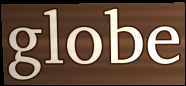
globe